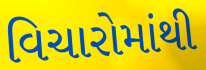
વિચારોમાંથી